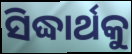
ସିଦ୍ଧାର୍ଥକୁ